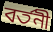
বর্তনী